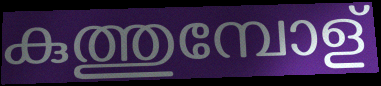
കുത്തുമ്പോള്